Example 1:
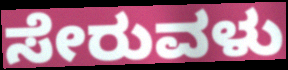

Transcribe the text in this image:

ಸೇರುವಳು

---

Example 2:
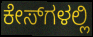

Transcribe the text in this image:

ಕೇಸ್‌ಗಳಲ್ಲಿ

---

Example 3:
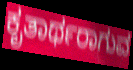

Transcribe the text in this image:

ಕೃತಾರ್ಥರಾಗುವ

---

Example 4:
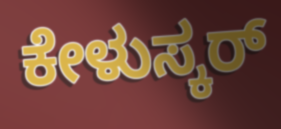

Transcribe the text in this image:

ಕೇಳುಸ್ಕರ್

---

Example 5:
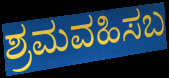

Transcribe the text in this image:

ಶ್ರಮವಹಿಸಬ